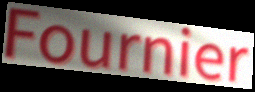
Fournier